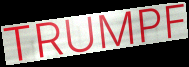
TRUMPF